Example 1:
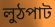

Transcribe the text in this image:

লুঠপাট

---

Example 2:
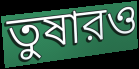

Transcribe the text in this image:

তুষারও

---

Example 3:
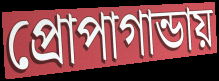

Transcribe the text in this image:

প্রোপাগান্ডায়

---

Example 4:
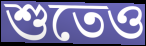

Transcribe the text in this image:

শুতেও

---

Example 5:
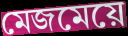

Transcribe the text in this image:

মেজমেয়ে